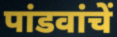
पांडवांचें